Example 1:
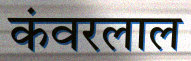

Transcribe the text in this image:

कंवरलाल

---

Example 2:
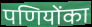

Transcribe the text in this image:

पणियोंका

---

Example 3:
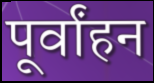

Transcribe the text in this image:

पूर्वांहन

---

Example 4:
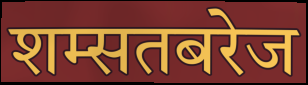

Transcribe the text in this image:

शम्सतबरेज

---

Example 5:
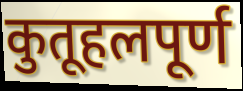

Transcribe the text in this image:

कुतूहलपूर्ण